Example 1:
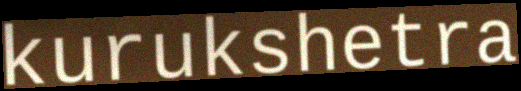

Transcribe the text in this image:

kurukshetra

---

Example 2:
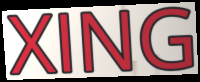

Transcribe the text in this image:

XING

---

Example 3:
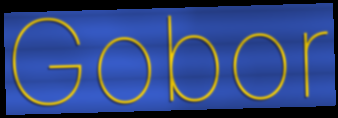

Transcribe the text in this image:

Gobor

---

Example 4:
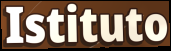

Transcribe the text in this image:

Istituto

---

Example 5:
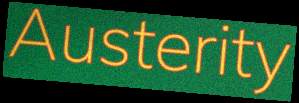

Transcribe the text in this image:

Austerity